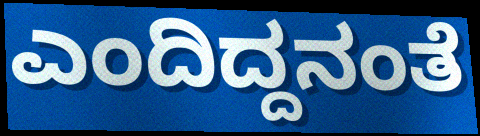
ಎಂದಿದ್ದನಂತೆ